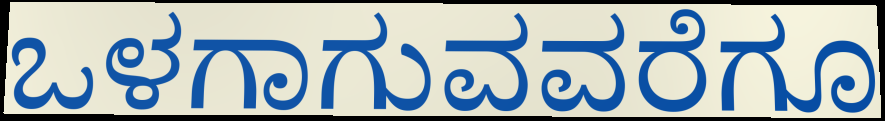
ಒಳಗಾಗುವವರೆಗೂ